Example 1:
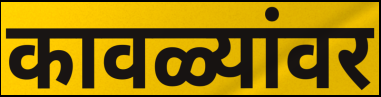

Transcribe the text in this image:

कावळ्यांवर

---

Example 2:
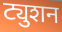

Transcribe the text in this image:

ट्युशन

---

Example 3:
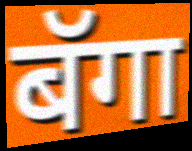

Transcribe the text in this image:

बॅगा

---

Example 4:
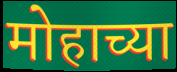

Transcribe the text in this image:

मोहाच्या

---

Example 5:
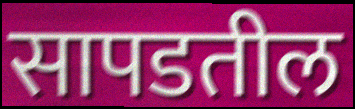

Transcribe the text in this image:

सापडतील